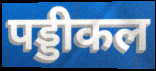
पड्डीकल